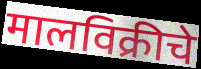
मालविक्रीचे